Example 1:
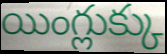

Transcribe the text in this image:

యింగ్లుక్కు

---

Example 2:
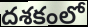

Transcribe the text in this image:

దశకంలో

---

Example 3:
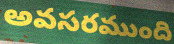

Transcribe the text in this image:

అవసరముంది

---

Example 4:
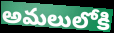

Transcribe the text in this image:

అమలులోకి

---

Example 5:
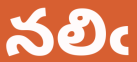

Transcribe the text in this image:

నలిఁ